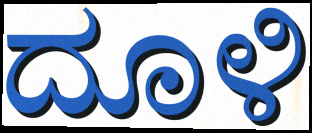
ದೂಳಿ